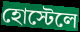
হোস্টেলে